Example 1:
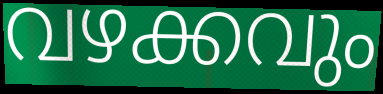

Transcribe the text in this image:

വഴക്കവും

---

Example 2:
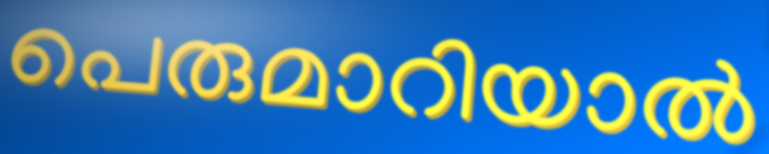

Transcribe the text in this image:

പെരുമാറിയാൽ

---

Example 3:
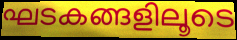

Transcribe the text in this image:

ഘടകങ്ങളിലൂടെ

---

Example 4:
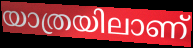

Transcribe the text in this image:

യാത്രയിലാണ്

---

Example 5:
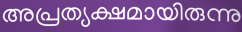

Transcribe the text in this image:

അപ്രത്യക്ഷമായിരുന്നു